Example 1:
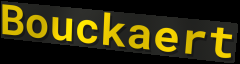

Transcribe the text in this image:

Bouckaert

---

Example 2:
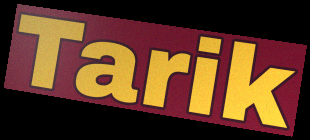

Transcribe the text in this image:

Tarik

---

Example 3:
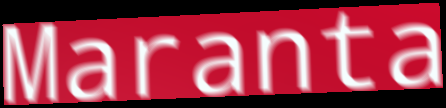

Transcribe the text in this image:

Maranta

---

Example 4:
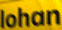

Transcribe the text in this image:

lohan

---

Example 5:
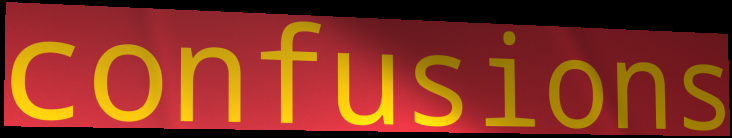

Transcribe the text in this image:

confusions